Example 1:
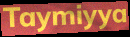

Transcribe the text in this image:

Taymiyya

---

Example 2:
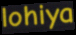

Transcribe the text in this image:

lohiya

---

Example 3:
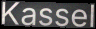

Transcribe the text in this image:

Kassel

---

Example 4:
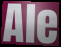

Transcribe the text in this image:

Ale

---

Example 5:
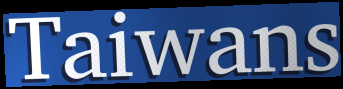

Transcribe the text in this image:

Taiwans